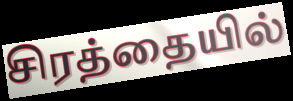
சிரத்தையில்